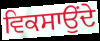
ਵਿਕਸਾਉਂਦੇ